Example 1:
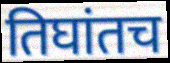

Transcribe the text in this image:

तिघांतच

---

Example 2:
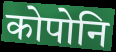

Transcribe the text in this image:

कोपोनि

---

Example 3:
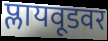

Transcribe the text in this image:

प्लायवूडवर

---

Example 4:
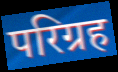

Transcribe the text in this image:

परिग्रह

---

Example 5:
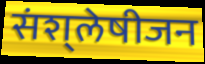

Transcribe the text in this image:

संश्लेषीजन